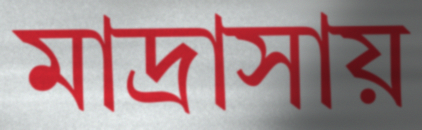
মাদ্রাসায়